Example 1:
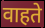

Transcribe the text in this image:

वाहते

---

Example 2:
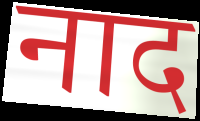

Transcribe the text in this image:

नाद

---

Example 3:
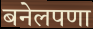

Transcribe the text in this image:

बनेलपणा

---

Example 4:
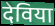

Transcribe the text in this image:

देविया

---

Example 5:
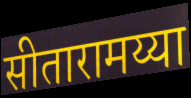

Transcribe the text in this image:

सीतारामय्या